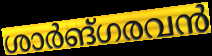
ശാർങ്ഗരവൻ